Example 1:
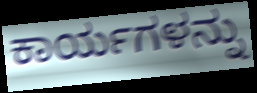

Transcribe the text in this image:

ಕಾರ್ಯಗಳನ್ನು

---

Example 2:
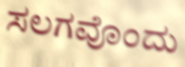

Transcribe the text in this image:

ಸಲಗವೊಂದು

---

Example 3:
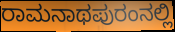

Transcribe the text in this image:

ರಾಮನಾಥಪುರಂನಲ್ಲಿ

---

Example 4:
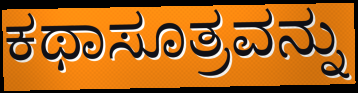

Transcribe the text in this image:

ಕಥಾಸೂತ್ರವನ್ನು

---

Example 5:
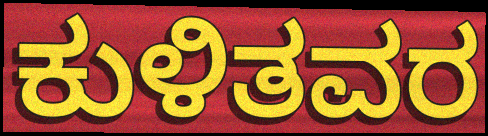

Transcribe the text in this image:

ಕುಳಿತವರ